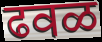
ढवळ